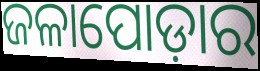
ଜଳାପୋଡ଼ାର